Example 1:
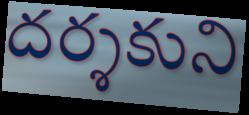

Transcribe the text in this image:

దర్శకుని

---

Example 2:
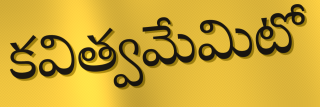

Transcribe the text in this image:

కవిత్వమేమిటో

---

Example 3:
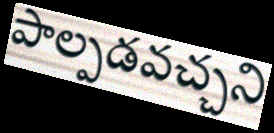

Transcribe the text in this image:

పాల్పడవచ్చని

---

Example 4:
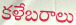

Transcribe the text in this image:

కళేబరాలు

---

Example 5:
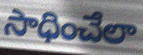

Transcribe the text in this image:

సాధించేలా